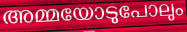
അമ്മയോടുപോലും